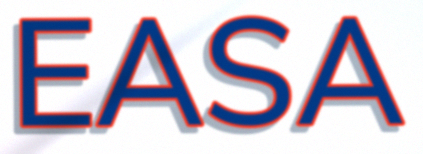
EASA